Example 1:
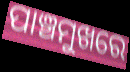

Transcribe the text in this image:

ପାଞ୍ଚମୁଖରେ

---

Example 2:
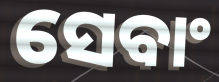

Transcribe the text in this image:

ସେବାଂ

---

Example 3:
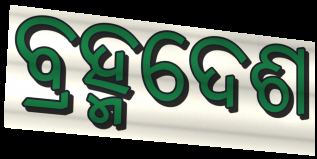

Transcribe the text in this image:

ବ୍ରହ୍ମଦେଶ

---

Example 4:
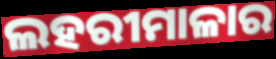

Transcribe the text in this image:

ଲହରୀମାଳାର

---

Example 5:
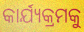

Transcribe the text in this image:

କାର୍ଯ୍ୟକ୍ରମକୁ